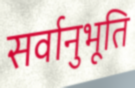
सर्वानुभूति